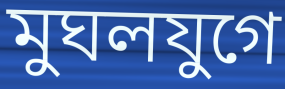
মুঘলযুগে